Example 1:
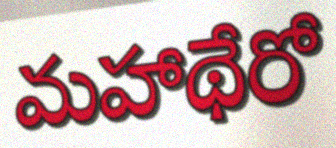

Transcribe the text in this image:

మహాథేరో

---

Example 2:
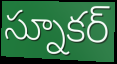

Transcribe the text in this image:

స్నూకర్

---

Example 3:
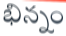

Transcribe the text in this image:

భిన్నం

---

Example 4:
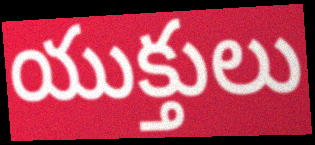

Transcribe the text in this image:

యుక్తులు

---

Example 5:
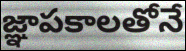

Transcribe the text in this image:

జ్ఞాపకాలతోనే